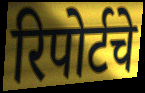
रिपोर्टचे